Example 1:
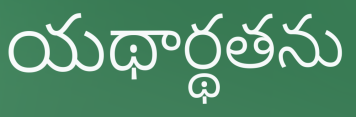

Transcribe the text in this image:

యథార్థతను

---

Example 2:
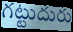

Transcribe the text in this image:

గట్టుదురు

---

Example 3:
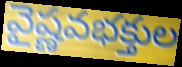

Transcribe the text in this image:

వైష్ణవభక్తుల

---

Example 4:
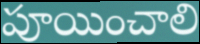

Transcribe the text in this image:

పూయించాలి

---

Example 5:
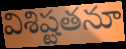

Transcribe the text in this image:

విశిష్టతనూ